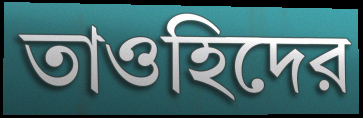
তাওহিদের